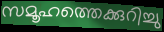
സമൂഹത്തെക്കുറിച്ചു